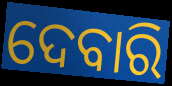
ଦେବାରି